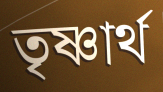
তৃষ্ণার্থ